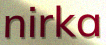
nirka